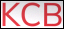
KCB